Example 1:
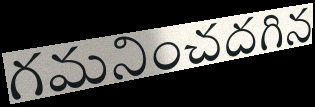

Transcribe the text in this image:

గమనించదగిన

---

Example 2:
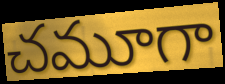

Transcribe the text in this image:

చమూగా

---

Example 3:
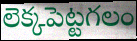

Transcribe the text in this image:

లెక్కపెట్టగలం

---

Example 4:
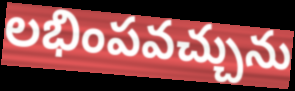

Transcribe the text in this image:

లభింపవచ్చును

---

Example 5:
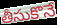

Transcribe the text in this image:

తీసుకొనే